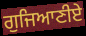
ਗੁਜਿਆਣੀਏ